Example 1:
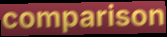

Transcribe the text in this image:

comparison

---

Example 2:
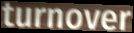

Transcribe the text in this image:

turnover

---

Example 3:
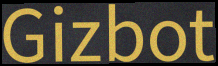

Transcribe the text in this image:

Gizbot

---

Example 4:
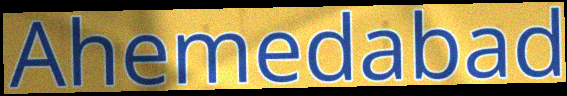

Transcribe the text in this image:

Ahemedabad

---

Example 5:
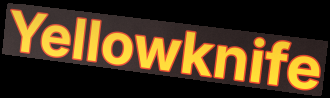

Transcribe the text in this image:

Yellowknife